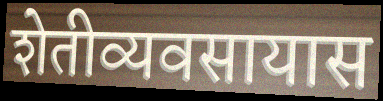
शेतीव्यवसायास